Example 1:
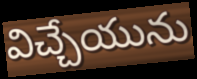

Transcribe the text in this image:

విచ్చేయును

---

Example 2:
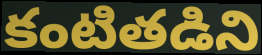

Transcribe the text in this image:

కంటితడిని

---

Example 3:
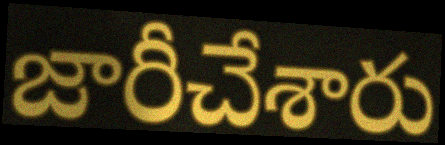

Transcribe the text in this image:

జారీచేశారు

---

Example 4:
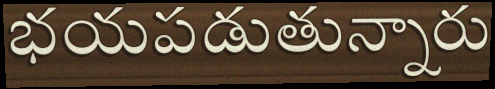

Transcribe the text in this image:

భయపడుతున్నారు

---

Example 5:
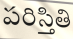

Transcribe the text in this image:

పరిస్తితి